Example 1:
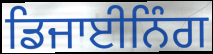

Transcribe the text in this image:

ਡਿਜਾਈਨਿੰਗ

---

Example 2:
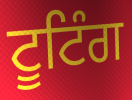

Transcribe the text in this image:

ਟੂਟਿੰਗ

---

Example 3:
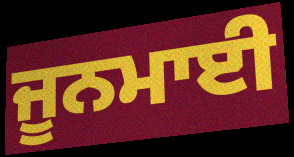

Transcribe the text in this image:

ਜੂਨਮਾਈ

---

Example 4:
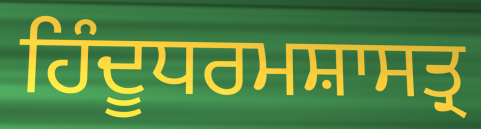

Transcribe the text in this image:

ਹਿੰਦੂਧਰਮਸ਼ਾਸਤ੍ਰ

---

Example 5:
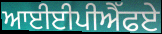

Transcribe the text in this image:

ਆਈਈਪੀਐੱਫਏ